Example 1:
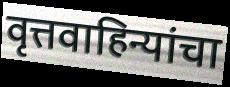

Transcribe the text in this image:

वृत्तवाहिन्यांचा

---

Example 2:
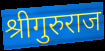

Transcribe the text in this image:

श्रीगुरुराज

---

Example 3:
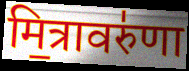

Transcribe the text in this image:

मि॒त्रावरु॑णा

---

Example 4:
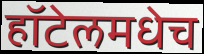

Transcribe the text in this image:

हॉटेलमधेच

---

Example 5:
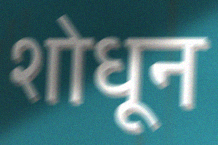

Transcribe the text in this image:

शोधून